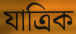
যাত্ৰিক